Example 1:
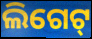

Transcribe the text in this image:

ଲିଗେଟ୍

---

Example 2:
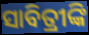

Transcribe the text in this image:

ସାବିତ୍ରୀଙ୍କି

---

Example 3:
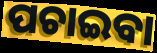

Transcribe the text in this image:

ପଚାଇବା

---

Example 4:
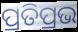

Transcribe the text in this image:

ପ୍ରତିପ୍ରଭ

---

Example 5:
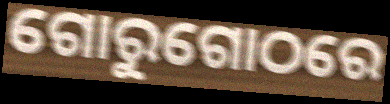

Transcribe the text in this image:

ଗୋରୁଗୋଠରେ